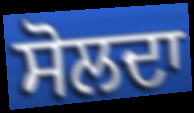
ਸੋਲਦਾ